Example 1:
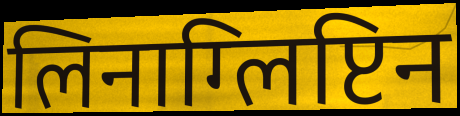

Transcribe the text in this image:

लिनाग्लिप्टिन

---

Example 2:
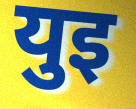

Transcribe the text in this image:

युइ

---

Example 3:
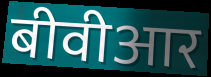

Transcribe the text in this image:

बीवीआर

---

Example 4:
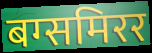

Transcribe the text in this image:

बग्समिरर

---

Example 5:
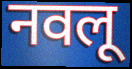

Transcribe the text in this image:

नवलू